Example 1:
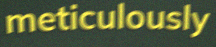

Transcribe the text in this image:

meticulously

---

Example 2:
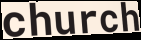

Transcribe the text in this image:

church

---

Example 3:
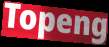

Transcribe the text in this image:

Topeng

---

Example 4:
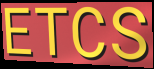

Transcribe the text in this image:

ETCS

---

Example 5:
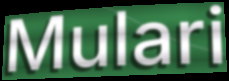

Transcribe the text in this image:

Mulari